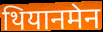
थियानमेन